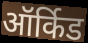
ऑर्किड